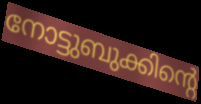
നോട്ടുബുക്കിന്റെ